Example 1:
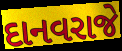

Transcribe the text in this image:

દાનવરાજે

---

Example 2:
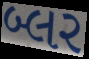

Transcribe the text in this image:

બ્લર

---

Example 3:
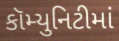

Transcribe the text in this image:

કૉમ્યુનિટીમાં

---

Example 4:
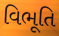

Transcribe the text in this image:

વિભૂતિ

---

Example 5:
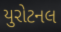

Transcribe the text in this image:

યુરોટનલ